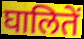
घालितें